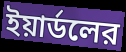
ইয়ার্ডলের